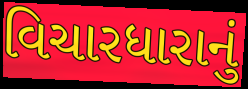
વિચારધારાનું